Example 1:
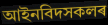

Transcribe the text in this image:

আইনবিদসকলৰ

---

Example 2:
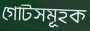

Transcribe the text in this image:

গোটসমূহক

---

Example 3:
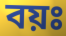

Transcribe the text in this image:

বয়ঃ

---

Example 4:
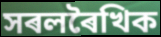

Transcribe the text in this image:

সৰলৰৈখিক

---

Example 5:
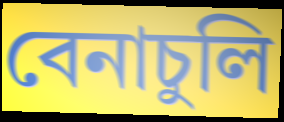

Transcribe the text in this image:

বেনাচুলি